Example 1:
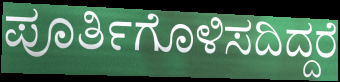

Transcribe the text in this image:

ಪೂರ್ತಿಗೊಳಿಸದಿದ್ದರೆ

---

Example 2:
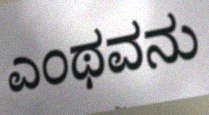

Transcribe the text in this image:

ಎಂಥವನು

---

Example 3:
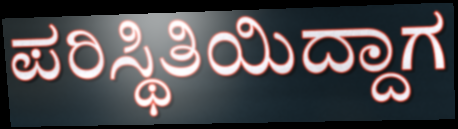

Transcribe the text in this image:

ಪರಿಸ್ಥಿತಿಯಿದ್ದಾಗ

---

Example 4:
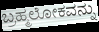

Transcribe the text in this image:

ಬ್ರಹ್ಮಲೋಕವನ್ನು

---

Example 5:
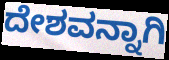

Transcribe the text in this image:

ದೇಶವನ್ನಾಗಿ